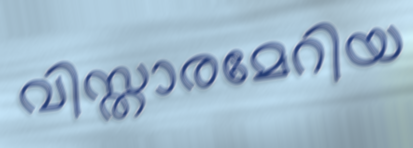
വിസ്താരമേറിയ